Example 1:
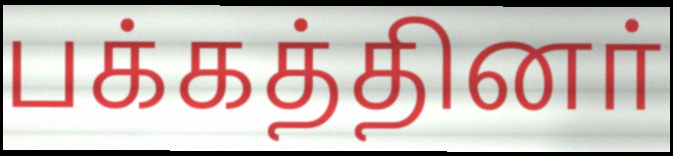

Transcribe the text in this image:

பக்கத்தினர்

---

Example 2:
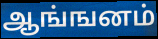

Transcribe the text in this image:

ஆங்ஙனம்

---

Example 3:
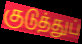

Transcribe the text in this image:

குடுத்துப்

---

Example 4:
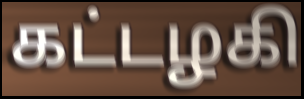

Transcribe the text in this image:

கட்டழகி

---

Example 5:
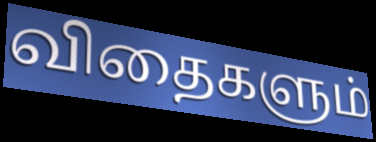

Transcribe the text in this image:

விதைகளும்